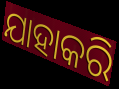
ଯାହାକରି